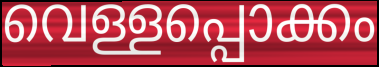
വെള്ളപ്പൊക്കം